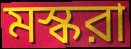
মস্করা